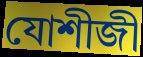
যোশীজী